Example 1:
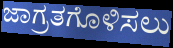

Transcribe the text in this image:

ಜಾಗ್ರತಗೊಳಿಸಲು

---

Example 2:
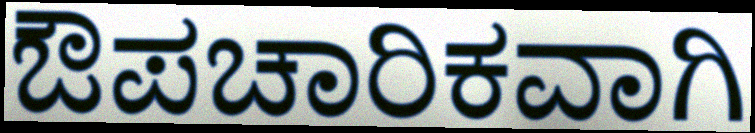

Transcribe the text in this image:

ಔಪಚಾರಿಕವಾಗಿ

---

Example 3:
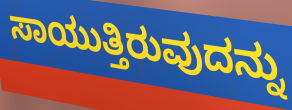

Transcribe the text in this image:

ಸಾಯುತ್ತಿರುವುದನ್ನು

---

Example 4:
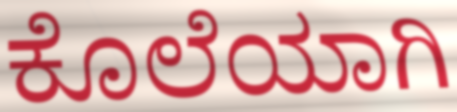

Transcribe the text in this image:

ಕೊಲೆಯಾಗಿ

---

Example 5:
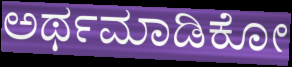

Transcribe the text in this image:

ಅರ್ಥಮಾಡಿಕೋ